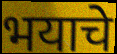
भयाचे